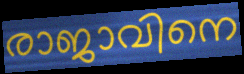
രാജാവിനെ